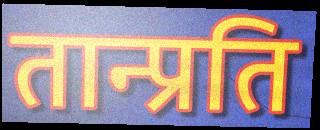
तान्प्रति